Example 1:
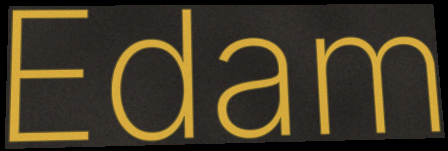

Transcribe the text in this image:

Edam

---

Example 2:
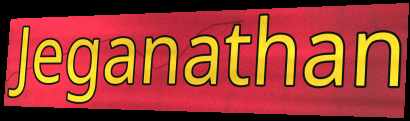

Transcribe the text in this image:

Jeganathan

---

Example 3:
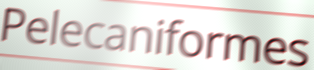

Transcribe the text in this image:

Pelecaniformes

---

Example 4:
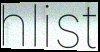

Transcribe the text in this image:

hlist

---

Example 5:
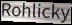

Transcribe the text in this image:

Rohlicky